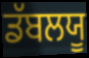
ਡੱਬਲਯੂ